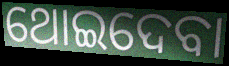
ଥୋଇଦେବା